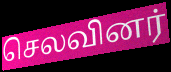
செலவினர்